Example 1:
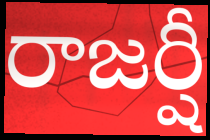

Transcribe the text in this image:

రాజర్షీ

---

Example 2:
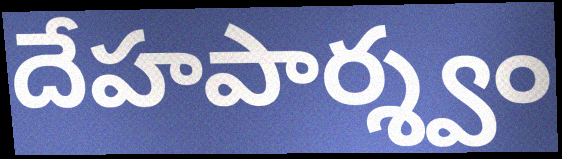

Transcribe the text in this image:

దేహపార్శ్వం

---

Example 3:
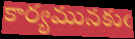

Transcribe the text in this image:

కార్యమునకుఁ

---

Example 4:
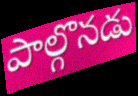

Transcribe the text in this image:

పాల్గొనడు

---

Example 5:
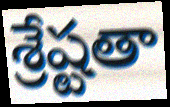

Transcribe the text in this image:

శ్రేష్టతా